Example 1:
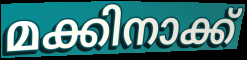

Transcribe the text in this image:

മക്കിനാക്ക്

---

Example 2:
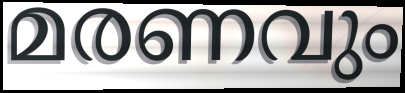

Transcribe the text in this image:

മരണവും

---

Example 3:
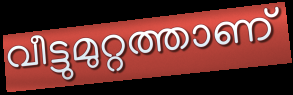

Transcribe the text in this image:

വീട്ടുമുറ്റത്താണ്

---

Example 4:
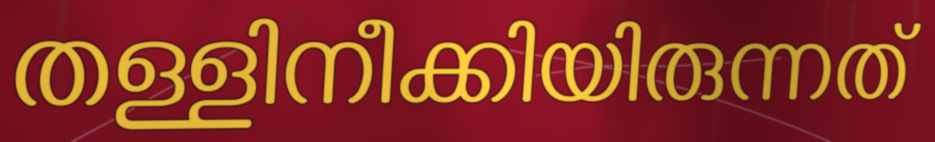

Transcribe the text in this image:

തള്ളിനീക്കിയിരുന്നത്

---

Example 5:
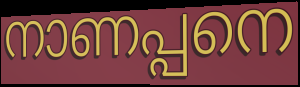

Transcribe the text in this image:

നാണപ്പനെ